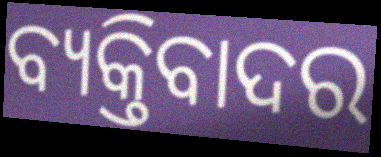
ବ୍ୟକ୍ତିବାଦର